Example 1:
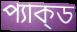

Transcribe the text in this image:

প্যাক্‌ড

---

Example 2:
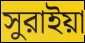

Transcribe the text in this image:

সুরাইয়া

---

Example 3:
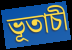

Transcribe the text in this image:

ভূতাচী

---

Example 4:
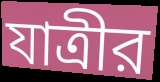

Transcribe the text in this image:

যাত্রীর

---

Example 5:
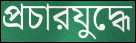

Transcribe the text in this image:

প্রচারযুদ্ধে